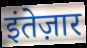
इंतेज़ार